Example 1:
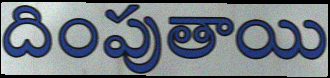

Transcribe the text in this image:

దింపుతాయి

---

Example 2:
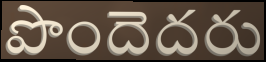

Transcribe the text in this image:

పొందెదరు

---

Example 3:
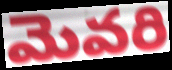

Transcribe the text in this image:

మెవరి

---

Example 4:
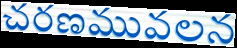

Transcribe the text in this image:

చరణమువలన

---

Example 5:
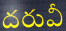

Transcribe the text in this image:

దరువీ